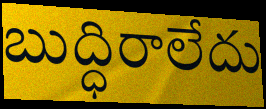
బుద్ధిరాలేదు